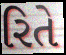
રિતે